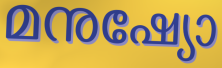
മനുഷ്യോ